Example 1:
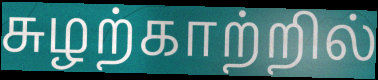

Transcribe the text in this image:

சுழற்காற்றில்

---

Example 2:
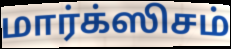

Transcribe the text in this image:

மார்க்ஸிசம்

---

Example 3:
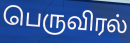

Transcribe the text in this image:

பெருவிரல்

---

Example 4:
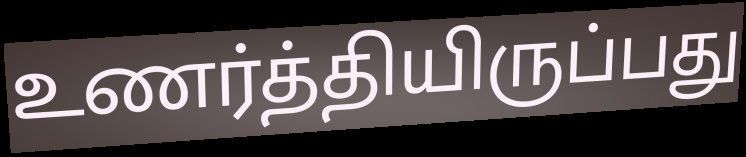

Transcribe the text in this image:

உணர்த்தியிருப்பது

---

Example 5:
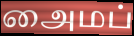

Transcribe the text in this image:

அைமப்